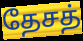
தேசத்